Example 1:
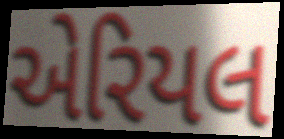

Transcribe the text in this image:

એરિયલ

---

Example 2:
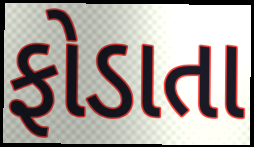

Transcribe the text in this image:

ફોડાતા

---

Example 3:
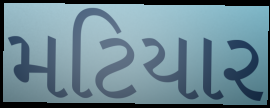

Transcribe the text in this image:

મટિયાર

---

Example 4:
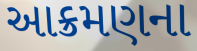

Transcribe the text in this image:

આક્રમણના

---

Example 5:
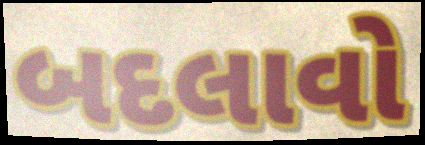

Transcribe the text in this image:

બદલાવો